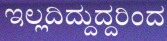
ಇಲ್ಲದಿದ್ದುದ್ದರಿಂದ